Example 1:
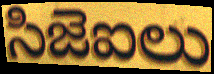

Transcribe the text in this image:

సిజెఐలు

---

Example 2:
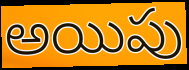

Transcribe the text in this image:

అయిపు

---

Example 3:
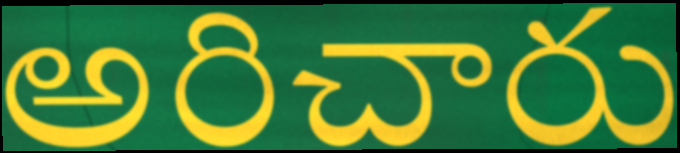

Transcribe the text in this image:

అరిచారు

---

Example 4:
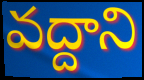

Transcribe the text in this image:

వద్దాని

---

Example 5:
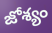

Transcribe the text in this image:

జోశ్యం